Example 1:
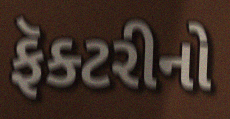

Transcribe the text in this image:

ફૅક્ટરીનો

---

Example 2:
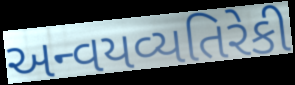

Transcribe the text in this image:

અન્વયવ્યતિરેકી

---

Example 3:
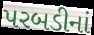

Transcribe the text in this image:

પરબડીનાં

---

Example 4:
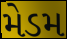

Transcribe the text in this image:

મેડમ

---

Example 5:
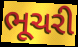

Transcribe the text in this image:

ભૂચરી